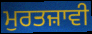
ਮੁਰਤਜ਼ਾਵੀ